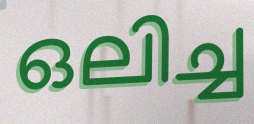
ഒലിച്ച